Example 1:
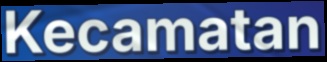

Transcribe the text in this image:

Kecamatan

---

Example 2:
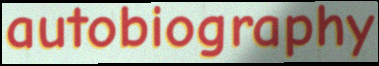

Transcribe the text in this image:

autobiography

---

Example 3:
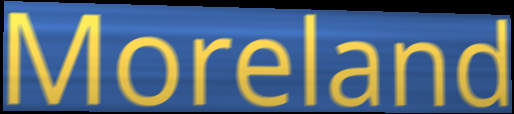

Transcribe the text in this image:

Moreland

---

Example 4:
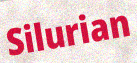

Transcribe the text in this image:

Silurian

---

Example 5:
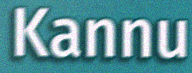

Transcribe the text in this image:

Kannu